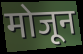
मोजून